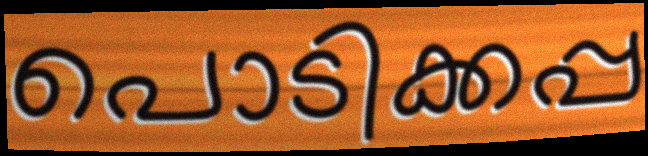
പൊടിക്കപ്പ